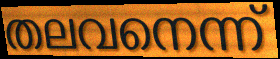
തലവനെന്ന്